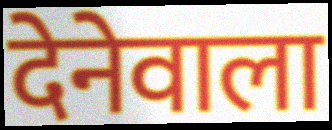
देनेवाला